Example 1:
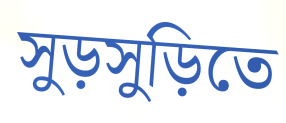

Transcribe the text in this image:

সুড়সুড়িতে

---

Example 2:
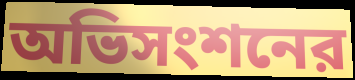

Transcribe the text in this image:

অভিসংশনের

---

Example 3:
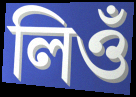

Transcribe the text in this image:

লিওঁ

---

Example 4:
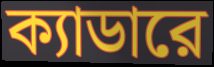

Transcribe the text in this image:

ক্যাডারে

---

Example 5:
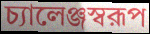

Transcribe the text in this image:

চ্যালেঞ্জস্বরূপ